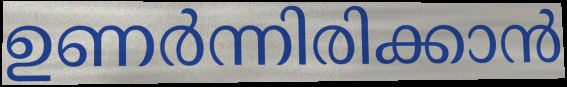
ഉണർന്നിരിക്കാൻ